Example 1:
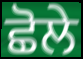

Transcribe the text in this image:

ਛੋਲੇ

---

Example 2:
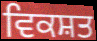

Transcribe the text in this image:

ਵਿਕਸ਼ਤ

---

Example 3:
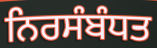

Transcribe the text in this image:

ਨਿਰਸੰਬੰਧਤ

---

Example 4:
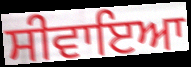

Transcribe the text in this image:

ਸੀਵਾਇਆ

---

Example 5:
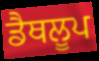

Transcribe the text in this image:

ਡੈਥਲੂਪ